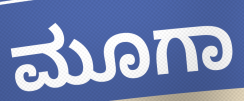
ಮೂಗಾ